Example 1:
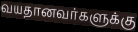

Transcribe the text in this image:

வயதானவர்களுக்கு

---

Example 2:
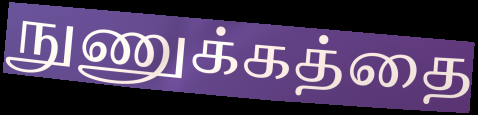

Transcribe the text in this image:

நுணுக்கத்தை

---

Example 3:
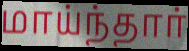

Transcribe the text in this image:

மாய்ந்தார்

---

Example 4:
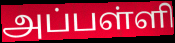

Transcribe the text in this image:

அப்பள்ளி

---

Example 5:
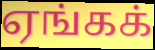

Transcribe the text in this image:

ஏங்கக்